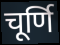
चूर्णि